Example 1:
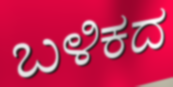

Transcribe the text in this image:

ಬಳಿಕದ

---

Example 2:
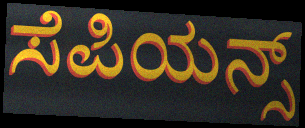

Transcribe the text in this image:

ಸೆಪಿಯನ್ಸ್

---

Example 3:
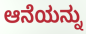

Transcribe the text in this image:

ಆನೆಯನ್ನು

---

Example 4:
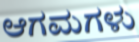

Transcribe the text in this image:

ಆಗಮಗಳು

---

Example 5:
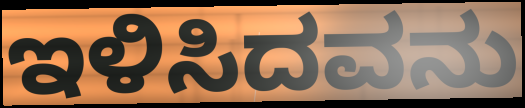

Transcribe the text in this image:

ಇಳಿಸಿದವನು